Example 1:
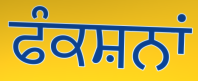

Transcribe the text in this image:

ਫੰਕਸ਼ਨਾਂ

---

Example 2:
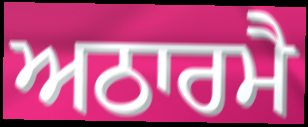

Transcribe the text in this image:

ਅਠਾਰਮੈ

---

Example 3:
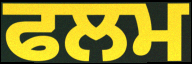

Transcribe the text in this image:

ਫਲਮ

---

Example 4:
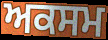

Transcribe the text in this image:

ਅਕਸਮ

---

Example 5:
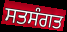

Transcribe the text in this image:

ਸਤਸੰਗਤ